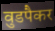
वुडपैकर